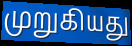
முறுகியது